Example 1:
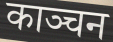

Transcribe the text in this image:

काञ्चन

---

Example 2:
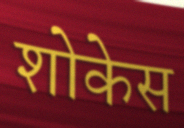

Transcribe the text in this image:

शोकेस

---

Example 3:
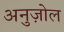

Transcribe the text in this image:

अनुज़ोल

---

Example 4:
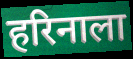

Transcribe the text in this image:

हरिनाला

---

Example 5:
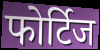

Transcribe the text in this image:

फोर्टिज